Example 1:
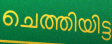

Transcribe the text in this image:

ചെത്തിയിട്ട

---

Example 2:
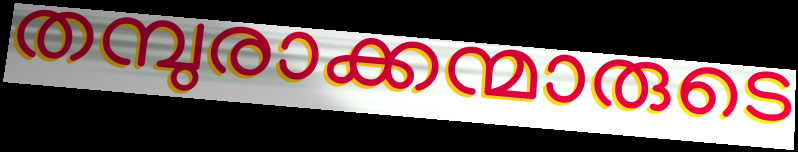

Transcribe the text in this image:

തമ്പുരാക്കന്മാരുടെ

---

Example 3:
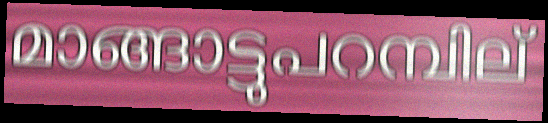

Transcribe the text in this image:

മാങ്ങാട്ടുപറമ്പില്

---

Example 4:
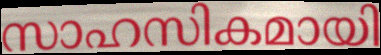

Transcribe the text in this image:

സാഹസികമായി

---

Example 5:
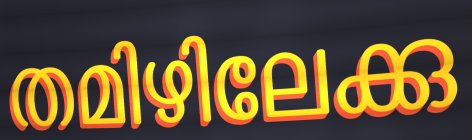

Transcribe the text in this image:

തമിഴിലേക്കു